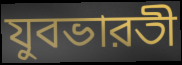
যুবভারতী